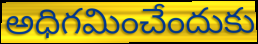
అధిగమించేందుకు